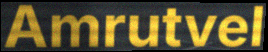
Amrutvel